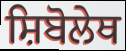
ਸ਼ਿਬੋਲੇਥ